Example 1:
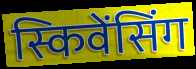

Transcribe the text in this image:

स्किवेंसिंग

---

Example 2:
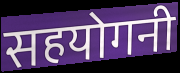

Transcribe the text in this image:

सहयोगनी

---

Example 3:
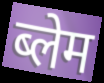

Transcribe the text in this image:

ब्लेम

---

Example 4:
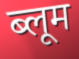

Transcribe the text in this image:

ब्लूम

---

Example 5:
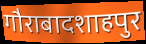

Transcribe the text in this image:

गौराबादशाहपुर